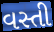
વસ્તી